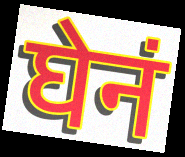
घेनं